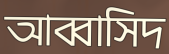
আব্বাসিদ